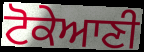
ਟੋਕੇਆਣੀ